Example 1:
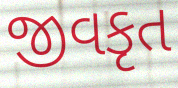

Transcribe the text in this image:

જીવકૃત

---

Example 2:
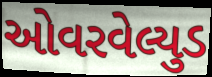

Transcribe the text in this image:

ઓવરવેલ્યુડ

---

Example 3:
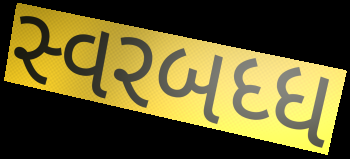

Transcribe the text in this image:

સ્વરબધ્ધ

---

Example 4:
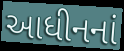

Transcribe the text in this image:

આધીનનાં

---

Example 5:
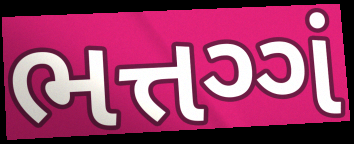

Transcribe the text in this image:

ભત્તગ્ગં